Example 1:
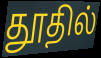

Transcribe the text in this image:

தூதில்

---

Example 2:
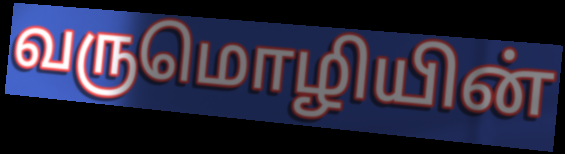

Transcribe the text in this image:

வருமொழியின்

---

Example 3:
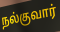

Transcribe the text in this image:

நல்குவார்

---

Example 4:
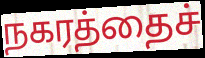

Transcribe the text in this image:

நகரத்தைச்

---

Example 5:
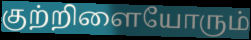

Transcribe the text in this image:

குற்றிளையோரும்